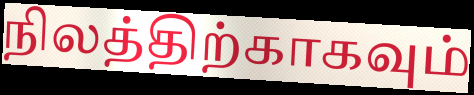
நிலத்திற்காகவும்